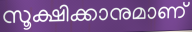
സൂക്ഷിക്കാനുമാണ്